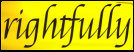
rightfully